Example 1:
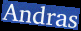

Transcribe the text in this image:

Andras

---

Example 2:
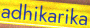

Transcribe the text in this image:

adhikarika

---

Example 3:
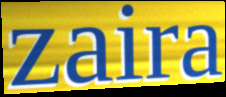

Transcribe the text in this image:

zaira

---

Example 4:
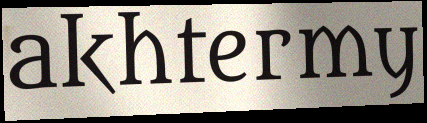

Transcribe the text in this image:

akhtermy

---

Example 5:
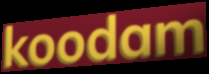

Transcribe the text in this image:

koodam